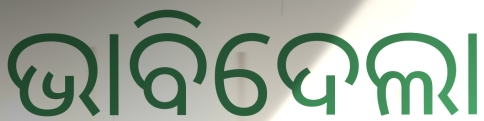
ଭାବିଦେଲା